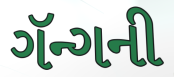
ગૅન્ગની